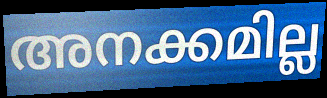
അനക്കമില്ല